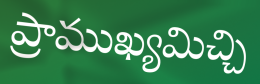
ప్రాముఖ్యమిచ్చి